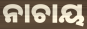
ନାଚାୟ